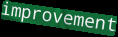
improvement